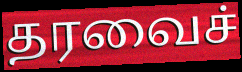
தரவைச்